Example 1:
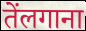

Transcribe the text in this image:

तेंलगाना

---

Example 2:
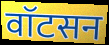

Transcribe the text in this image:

वॉटसन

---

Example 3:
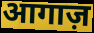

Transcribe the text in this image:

आगाज़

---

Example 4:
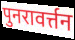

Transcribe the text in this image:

पुनरावर्त्तन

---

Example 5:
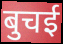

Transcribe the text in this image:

बुचई